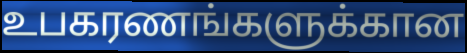
உபகரணங்களுக்கான